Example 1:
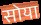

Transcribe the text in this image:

सोया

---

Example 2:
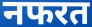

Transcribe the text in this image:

नफरत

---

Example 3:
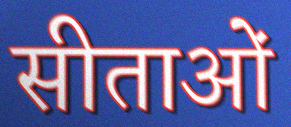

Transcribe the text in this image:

सीताओं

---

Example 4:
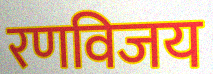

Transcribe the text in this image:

रणविजय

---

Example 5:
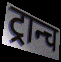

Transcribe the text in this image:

ट्रान्च